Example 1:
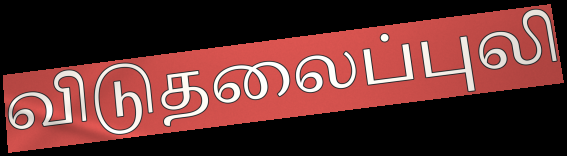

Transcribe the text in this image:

விடுதலைப்புலி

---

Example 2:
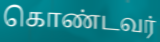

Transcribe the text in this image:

கொண்டவர்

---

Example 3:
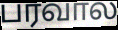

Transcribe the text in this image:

பரவால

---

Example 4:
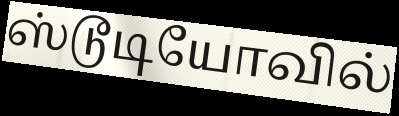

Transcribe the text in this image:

ஸ்டூடியோவில்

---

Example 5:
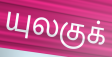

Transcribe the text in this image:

யுலகுக்